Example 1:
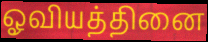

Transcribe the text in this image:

ஓவியத்தினை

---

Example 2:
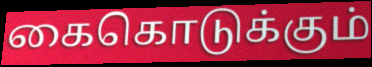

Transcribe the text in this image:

கைகொடுக்கும்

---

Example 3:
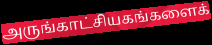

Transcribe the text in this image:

அருங்காட்சியகங்களைக்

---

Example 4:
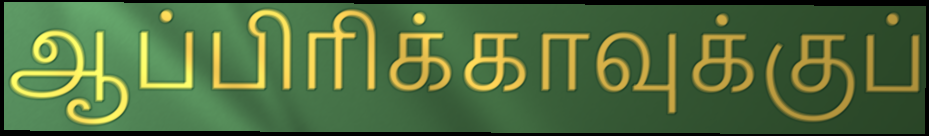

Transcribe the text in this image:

ஆப்பிரிக்காவுக்குப்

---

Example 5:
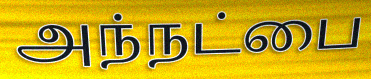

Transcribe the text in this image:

அந்நட்பை